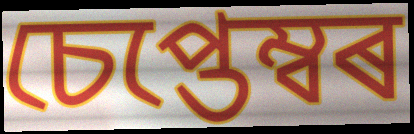
চেপ্তেম্বৰ